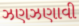
ઝણઝણાવી